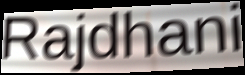
Rajdhani